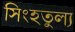
সিংহতুল্য